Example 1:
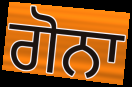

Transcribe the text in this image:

ਗੋਨਾ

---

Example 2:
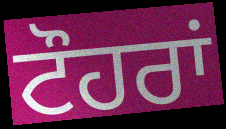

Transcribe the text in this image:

ਟੌਹਰਾਂ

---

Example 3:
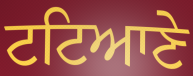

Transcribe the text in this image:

ਟਟਿਆਣੇ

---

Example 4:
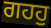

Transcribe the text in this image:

ਗਹਹੁ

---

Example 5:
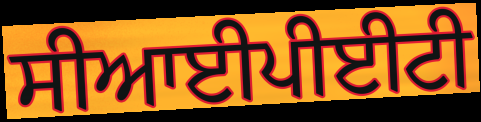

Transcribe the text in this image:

ਸੀਆਈਪੀਈਟੀ